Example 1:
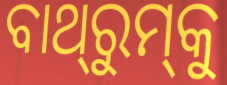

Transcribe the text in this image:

ବାଥ୍‌ରୁମ୍‌କୁ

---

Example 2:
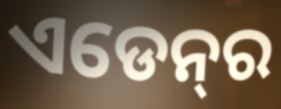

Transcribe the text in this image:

ଏଡେନ୍‍ର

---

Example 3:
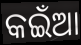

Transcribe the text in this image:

କଇଁଆ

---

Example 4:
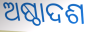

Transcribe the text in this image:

ଅଷ୍ଠାଦଶ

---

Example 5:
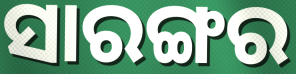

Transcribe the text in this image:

ସାରଙ୍ଗର